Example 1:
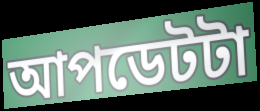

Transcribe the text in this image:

আপডেটটা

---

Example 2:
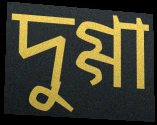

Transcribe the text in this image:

দুগ্গা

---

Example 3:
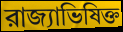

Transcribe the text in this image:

রাজ্যাভিষিক্ত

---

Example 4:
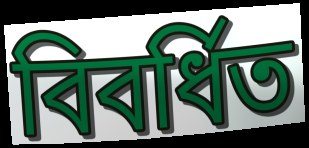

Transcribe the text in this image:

বিবর্ধিত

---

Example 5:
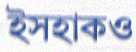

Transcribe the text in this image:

ইসহাকও